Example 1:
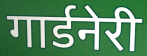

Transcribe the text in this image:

गार्डनेरी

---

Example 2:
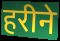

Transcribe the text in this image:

हरीने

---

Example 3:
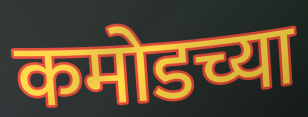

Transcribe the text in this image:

कमोडच्या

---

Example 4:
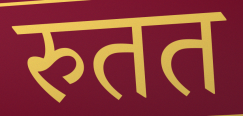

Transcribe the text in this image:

रुतत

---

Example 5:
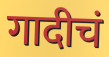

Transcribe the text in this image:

गादीचं